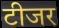
टीजर